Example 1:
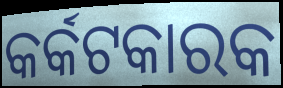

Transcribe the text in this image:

କର୍କଟକାରକ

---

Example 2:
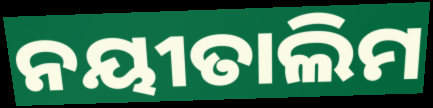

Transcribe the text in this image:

ନୟୀତାଲିମ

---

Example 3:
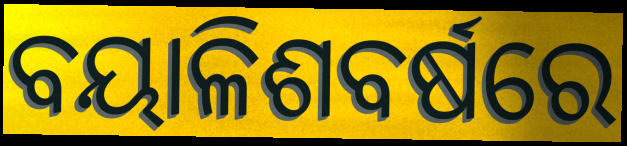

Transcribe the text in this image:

ବୟାଳିଶବର୍ଷରେ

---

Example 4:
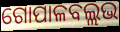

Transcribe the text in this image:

ଗୋପାଳବଲ୍ଲଭ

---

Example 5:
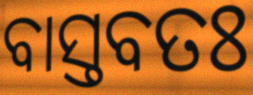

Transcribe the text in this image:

ବାସ୍ତବତଃ